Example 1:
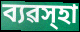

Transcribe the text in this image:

ব্যৱস্হা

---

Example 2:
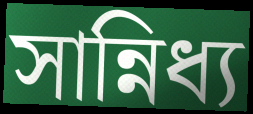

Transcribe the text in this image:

সান্নিধ্য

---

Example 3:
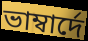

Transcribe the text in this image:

ভাম্বাৰ্দে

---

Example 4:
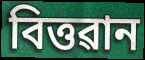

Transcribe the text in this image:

বিত্তৱান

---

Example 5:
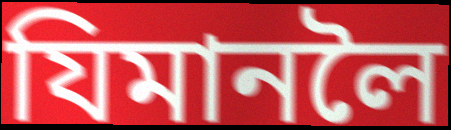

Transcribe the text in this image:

যিমানলৈ